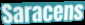
Saracens